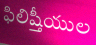
ఫిలిష్తీయుల